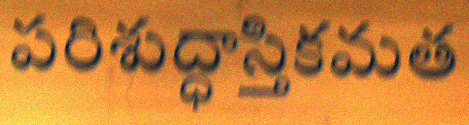
పరిశుద్ధాస్తికమత